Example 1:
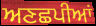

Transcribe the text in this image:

ਅਣਛਪੀਆਂ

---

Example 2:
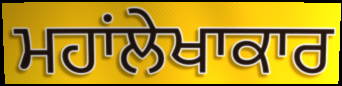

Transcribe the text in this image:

ਮਹਾਂਲੇਖਾਕਾਰ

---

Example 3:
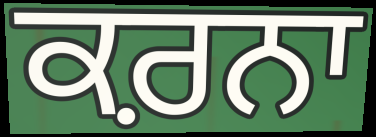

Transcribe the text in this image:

ਕ਼ਰਨਾ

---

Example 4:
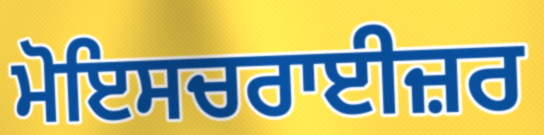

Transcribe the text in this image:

ਮੋਇਸਚਰਾਈਜ਼ਰ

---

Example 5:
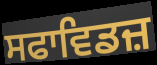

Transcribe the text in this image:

ਸਫਾਵਿਡਜ਼